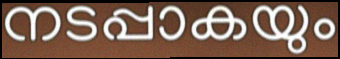
നടപ്പാകയും